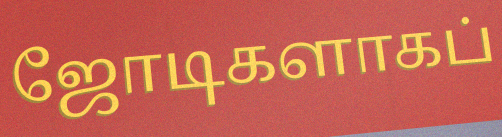
ஜோடிகளாகப்